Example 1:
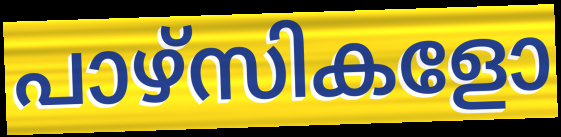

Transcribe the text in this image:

പാഴ്സികളോ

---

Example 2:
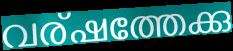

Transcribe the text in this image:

വര്ഷത്തേക്കു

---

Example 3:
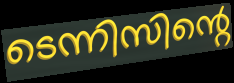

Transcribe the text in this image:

ടെന്നിസിന്റെ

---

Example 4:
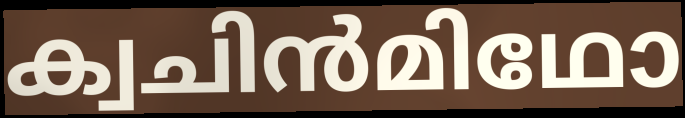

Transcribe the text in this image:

ക്വചിൻമിഥോ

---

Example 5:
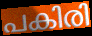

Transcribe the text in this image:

പകിരി